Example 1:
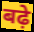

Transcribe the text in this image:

बढ़े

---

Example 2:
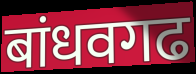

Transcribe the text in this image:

बांधवगढ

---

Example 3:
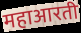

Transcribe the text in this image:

महाआरती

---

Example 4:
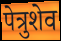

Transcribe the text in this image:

पेत्रुशेव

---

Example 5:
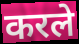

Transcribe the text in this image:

करले